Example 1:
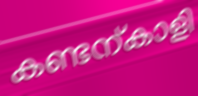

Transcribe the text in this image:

കണ്ടന്കാളി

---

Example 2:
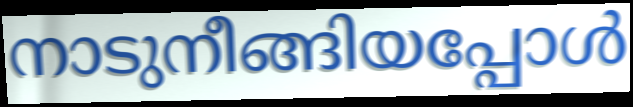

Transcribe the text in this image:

നാടുനീങ്ങിയപ്പോൾ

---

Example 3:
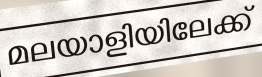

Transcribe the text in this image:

മലയാളിയിലേക്ക്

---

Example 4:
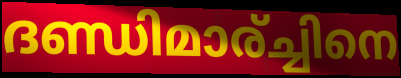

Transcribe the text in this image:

ദണ്ഡിമാര്ച്ചിനെ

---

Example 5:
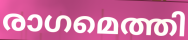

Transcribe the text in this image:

രാഗമെത്തി